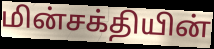
மின்சக்தியின்